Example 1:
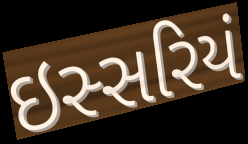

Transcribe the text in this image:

ઇસ્સરિયં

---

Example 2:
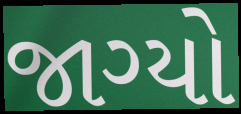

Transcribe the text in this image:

જાગ્યો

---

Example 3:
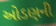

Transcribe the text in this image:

ઓડણની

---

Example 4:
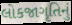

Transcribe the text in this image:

લોકજાગૃતિનું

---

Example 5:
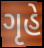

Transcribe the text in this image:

ગૃહે